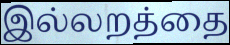
இல்லறத்தை